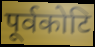
पूर्वकोटि